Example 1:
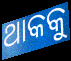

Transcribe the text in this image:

ଥାକକୁ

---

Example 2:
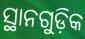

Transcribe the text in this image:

ସ୍ଥାନଗୁଡ଼ିକ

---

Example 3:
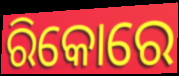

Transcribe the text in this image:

ରିକୋରେ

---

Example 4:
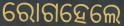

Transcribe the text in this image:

ରୋଗହେଲେ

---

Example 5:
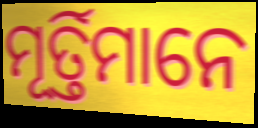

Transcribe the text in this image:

ମୂର୍ତ୍ତିମାନେ